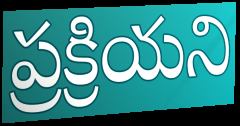
ప్రక్రియని